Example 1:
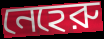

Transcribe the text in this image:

নেহেরু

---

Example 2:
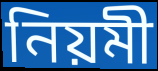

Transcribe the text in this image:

নিয়মী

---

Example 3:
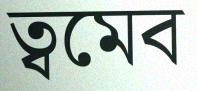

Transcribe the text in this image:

ত্বমেব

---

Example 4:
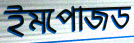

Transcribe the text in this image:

ইমপোজড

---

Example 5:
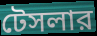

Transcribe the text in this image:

টেসলার